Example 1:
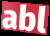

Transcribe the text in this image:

abl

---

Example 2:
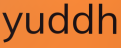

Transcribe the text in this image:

yuddh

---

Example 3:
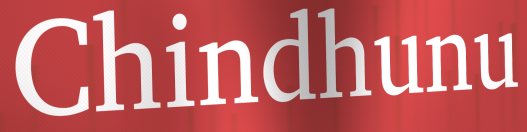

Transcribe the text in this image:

Chindhunu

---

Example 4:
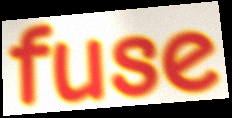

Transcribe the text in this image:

fuse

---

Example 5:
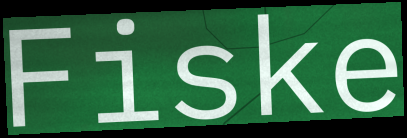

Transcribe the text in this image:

Fiske